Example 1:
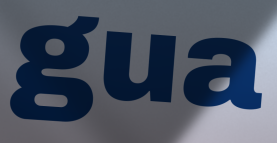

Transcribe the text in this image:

gua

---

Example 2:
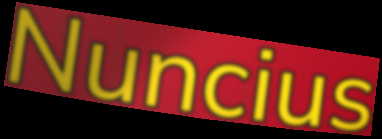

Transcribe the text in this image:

Nuncius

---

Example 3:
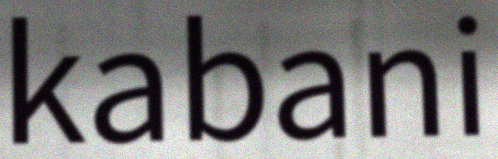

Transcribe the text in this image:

kabani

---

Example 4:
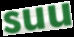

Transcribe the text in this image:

suu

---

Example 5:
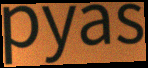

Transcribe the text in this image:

pyas